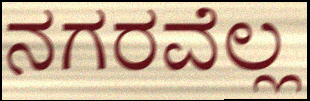
ನಗರವೆಲ್ಲ